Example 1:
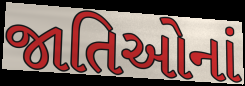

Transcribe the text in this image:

જાતિઓનાં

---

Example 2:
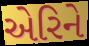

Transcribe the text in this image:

એરિને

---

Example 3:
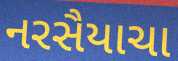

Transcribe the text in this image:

નરસૈયાચા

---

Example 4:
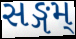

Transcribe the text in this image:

સઙ્ગમ્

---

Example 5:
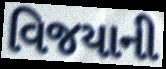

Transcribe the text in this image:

વિજયાની